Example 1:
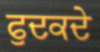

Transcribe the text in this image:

ਫੁਦਕਦੇ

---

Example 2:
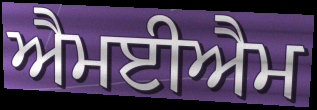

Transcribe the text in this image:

ਐਮਈਐਮ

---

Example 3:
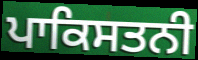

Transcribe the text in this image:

ਪਾਕਿਸਤਨੀ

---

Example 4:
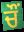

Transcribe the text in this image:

ਚੌਂ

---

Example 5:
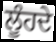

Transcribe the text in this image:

ਲੂੰਹਦੇ